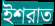
ইশরাত